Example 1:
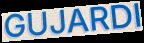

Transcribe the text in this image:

GUJARDI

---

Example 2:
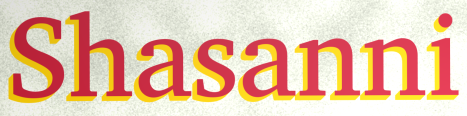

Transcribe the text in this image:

Shasanni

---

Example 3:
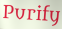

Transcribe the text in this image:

Purify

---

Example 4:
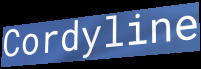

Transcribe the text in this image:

Cordyline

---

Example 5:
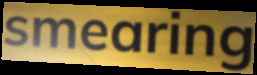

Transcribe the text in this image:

smearing